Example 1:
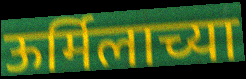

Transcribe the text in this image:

ऊर्मिलाच्या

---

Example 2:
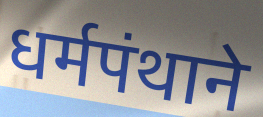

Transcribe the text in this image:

धर्मपंथाने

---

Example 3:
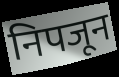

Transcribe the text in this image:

निपजून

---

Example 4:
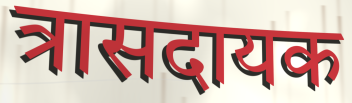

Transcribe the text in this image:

त्रासदायक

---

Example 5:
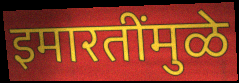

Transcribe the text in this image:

इमारतींमुळे